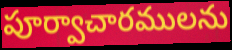
పూర్వాచారములను